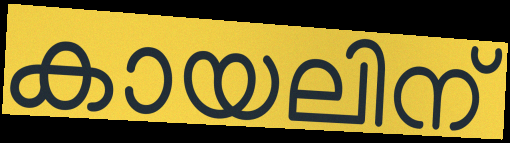
കായലിന്